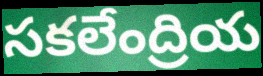
సకలేంద్రియ